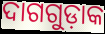
ଦାଗଗୁଡ଼ାକ